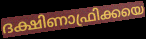
ദക്ഷിണാഫ്രിക്കയെ